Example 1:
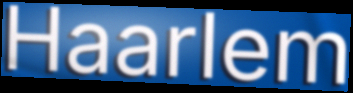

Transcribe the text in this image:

Haarlem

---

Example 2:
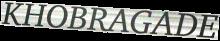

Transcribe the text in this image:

KHOBRAGADE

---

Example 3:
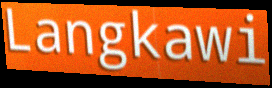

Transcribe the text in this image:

Langkawi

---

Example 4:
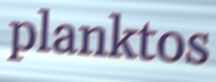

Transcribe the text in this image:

planktos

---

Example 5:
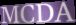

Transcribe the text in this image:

MCDA